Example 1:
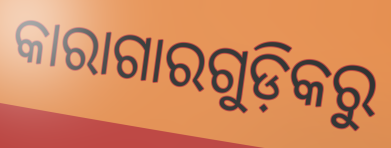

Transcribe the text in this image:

କାରାଗାରଗୁଡ଼ିକରୁ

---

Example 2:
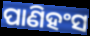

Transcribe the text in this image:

ପାଣିହଂସ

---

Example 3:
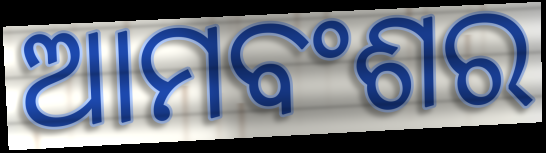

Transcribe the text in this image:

ଆମବଂଶର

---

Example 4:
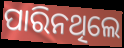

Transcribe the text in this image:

ପାରିନଥିଲେ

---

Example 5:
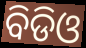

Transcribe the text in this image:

ବିଡିଓ